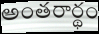
అంతరార్థం